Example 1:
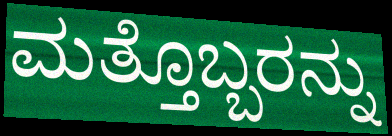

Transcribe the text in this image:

ಮತ್ತೊಬ್ಬರನ್ನು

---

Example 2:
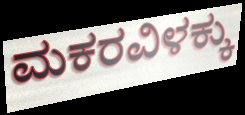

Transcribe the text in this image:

ಮಕರವಿಳಕ್ಕು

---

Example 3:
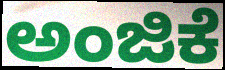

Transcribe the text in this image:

ಅಂಜಿಕೆ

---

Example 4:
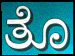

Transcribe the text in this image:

ತೊ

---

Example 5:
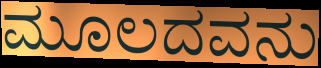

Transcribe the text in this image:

ಮೂಲದವನು